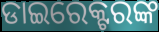
ଡାଇରେକ୍ଟରଙ୍କ